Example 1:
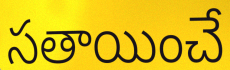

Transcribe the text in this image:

సతాయించే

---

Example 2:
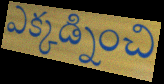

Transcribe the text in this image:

ఎక్కడ్నించి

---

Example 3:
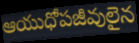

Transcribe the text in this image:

ఆయుధోపజీవులైన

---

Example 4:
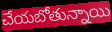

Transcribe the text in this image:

చేయబోతున్నాయి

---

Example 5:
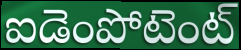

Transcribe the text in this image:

ఐడెంపోటెంట్